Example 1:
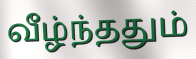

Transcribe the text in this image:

வீழ்ந்ததும்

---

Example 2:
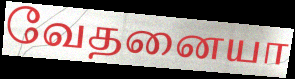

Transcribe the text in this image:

வேதனையா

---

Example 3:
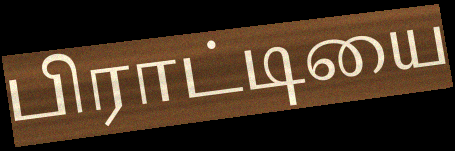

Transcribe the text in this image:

பிராட்டியை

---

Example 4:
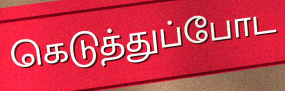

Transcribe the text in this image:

கெடுத்துப்போட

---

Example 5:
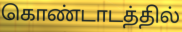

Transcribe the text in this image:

கொண்டாடத்தில்